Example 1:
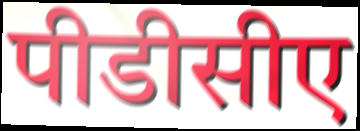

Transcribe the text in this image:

पीडीसीए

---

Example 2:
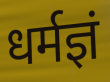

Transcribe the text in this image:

धर्मज्ञं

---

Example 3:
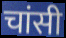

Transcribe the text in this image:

चांसी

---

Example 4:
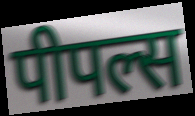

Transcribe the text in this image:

पीपल्स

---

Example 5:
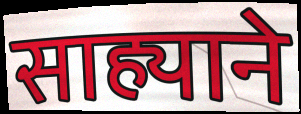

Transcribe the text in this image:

साह्याने